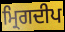
ਮ੍ਰਿਗਦੀਪ